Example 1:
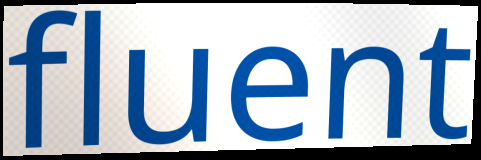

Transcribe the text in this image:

fluent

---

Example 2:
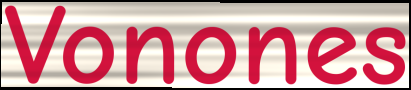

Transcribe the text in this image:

Vonones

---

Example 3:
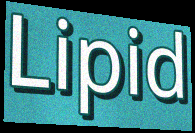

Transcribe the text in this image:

Lipid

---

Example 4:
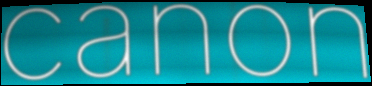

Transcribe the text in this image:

canon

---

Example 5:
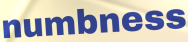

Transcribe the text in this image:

numbness